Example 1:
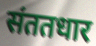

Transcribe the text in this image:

संततधार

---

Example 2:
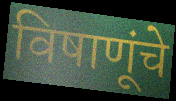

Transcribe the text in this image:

विषाणूंचे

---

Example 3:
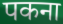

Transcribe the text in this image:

पकना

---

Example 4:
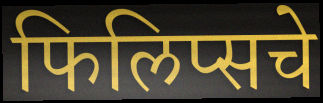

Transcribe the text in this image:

फिलिप्सचे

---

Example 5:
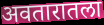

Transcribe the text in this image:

अवतारातला